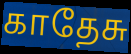
காதேசு